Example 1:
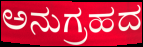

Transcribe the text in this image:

ಅನುಗ್ರಹದ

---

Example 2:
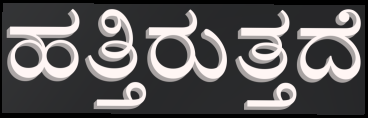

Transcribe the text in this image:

ಹತ್ತಿರುತ್ತದೆ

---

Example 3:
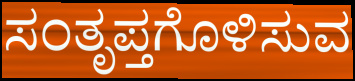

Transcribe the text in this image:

ಸಂತೃಪ್ತಗೊಳಿಸುವ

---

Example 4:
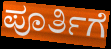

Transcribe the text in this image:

ಪೂರ್ತಿಗೆ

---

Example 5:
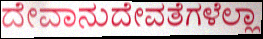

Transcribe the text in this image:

ದೇವಾನುದೇವತೆಗಳೆಲ್ಲಾ